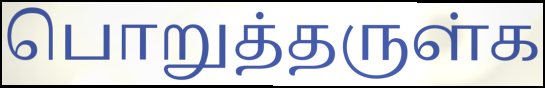
பொறுத்தருள்க